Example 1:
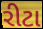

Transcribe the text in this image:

રીટા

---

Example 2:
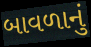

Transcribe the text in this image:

બાવળાનું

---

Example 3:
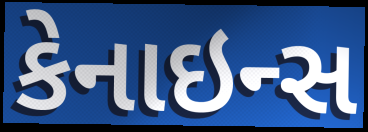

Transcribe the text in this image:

કેનાઇન્સ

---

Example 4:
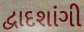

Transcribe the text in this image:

દ્વાદશાંગી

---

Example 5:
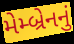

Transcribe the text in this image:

મેમ્બ્રેનનું